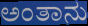
ಅಂತಾನು